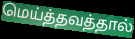
மெய்த்தவத்தால்